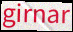
girnar